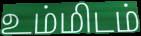
உம்மிடம்